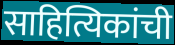
साहित्यिकांची